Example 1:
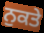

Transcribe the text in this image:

ਨੁਕਤੇ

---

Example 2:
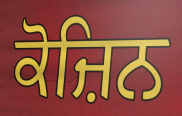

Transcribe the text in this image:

ਕੋਜ਼ਿਨ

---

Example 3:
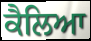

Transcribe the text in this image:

ਕੈਲਿਆ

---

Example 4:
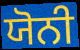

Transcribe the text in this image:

ਯੋਨੀ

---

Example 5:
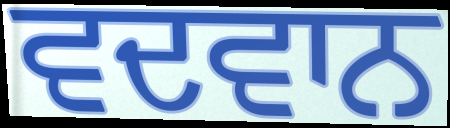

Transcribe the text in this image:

ਵਦਵਾਨ